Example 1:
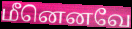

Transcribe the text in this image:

மீனெனவே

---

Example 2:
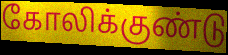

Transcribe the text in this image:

கோலிக்குண்டு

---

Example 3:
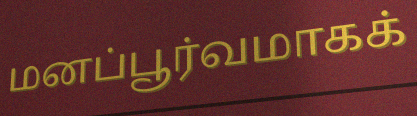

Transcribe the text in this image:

மனப்பூர்வமாகக்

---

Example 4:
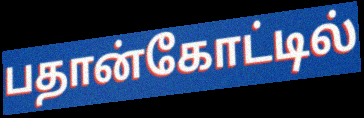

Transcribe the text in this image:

பதான்கோட்டில்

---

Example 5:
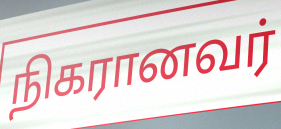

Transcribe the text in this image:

நிகரானவர்